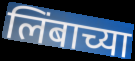
लिंबाच्या